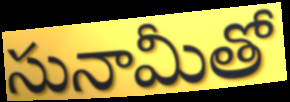
సునామీతో